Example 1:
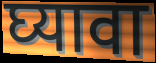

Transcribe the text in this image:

घ्यावा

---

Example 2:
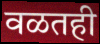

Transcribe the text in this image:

वळतही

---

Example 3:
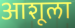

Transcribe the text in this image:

आशूला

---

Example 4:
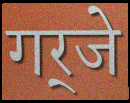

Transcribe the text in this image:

गर्जे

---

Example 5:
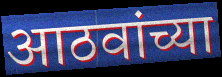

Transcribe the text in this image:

आठवांच्या